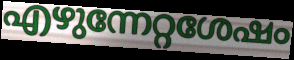
എഴുന്നേറ്റശേഷം